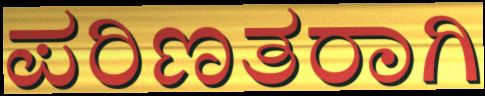
ಪರಿಣತರಾಗಿ